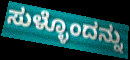
ಸುಳ್ಳೊಂದನ್ನು